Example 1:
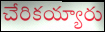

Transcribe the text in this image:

చేరికయ్యారు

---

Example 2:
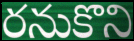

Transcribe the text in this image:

రనుకొని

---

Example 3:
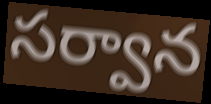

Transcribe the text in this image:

సర్వాన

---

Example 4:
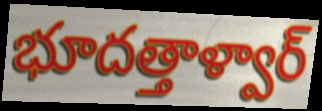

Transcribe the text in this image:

భూదత్తాళ్వార్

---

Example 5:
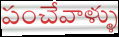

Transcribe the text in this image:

పంచేవాళ్ళు